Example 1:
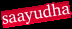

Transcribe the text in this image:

saayudha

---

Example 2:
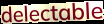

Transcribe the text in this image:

delectable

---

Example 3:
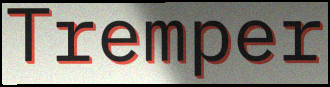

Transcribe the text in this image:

Tremper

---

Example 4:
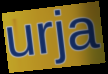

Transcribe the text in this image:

urja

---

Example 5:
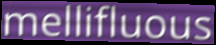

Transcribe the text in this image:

mellifluous